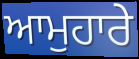
ਆਮੁਹਾਰੇ